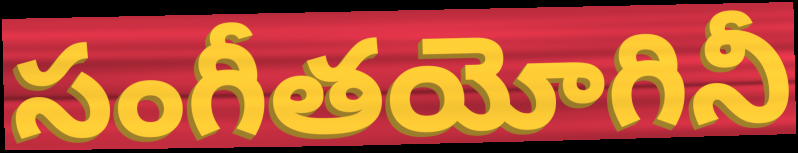
సంగీతయోగినీ